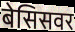
बेसिसवर